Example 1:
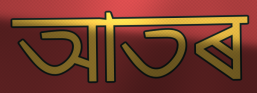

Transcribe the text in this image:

আতৰ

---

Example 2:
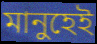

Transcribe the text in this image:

মানুহেই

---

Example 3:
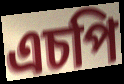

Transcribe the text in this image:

এচপি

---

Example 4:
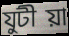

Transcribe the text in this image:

যুটীয়া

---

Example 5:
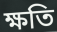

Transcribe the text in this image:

ক্ষতি